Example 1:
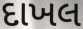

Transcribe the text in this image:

દાખલ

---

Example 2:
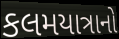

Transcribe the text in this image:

કલમયાત્રાનો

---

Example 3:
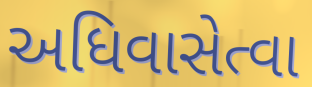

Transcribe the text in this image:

અધિવાસેત્વા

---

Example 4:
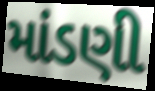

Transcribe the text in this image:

માંડણી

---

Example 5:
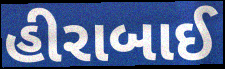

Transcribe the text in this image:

હીરાબાઈ